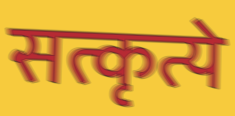
सत्कृत्ये